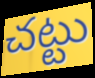
చట్టు